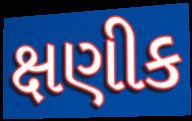
ક્ષણીક